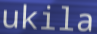
ukila